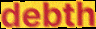
debth